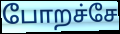
போறச்சே